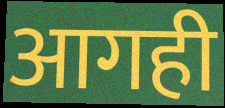
आगही